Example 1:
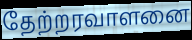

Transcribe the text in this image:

தேற்றரவாளனை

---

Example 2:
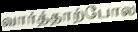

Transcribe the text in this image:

வார்த்தாற்போல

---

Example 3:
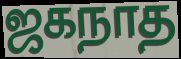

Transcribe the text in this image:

ஜகநாத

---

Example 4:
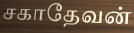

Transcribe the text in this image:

சகாதேவன்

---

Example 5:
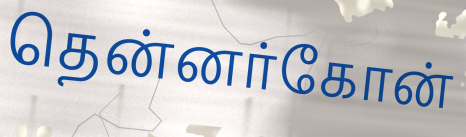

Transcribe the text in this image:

தென்னர்கோன்